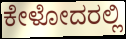
ಕೇಳೋದರಲ್ಲಿ